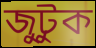
জুটুক